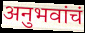
अनुभवांचं